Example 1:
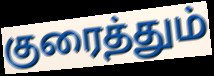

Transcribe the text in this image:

குரைத்தும்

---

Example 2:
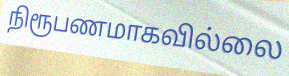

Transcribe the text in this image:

நிரூபணமாகவில்லை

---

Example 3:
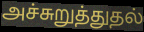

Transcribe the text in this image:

அச்சுறுத்துதல்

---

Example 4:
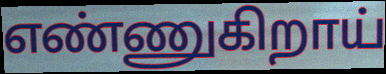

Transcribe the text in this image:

எண்ணுகிறாய்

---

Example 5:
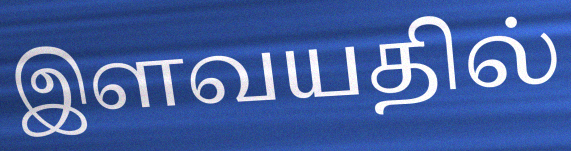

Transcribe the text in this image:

இளவயதில்